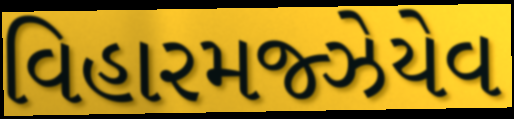
વિહારમજ્ઝેયેવ